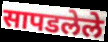
सापडलेले